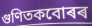
গুণিতকবোৰৰ